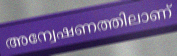
അന്വേഷണത്തിലാണ്